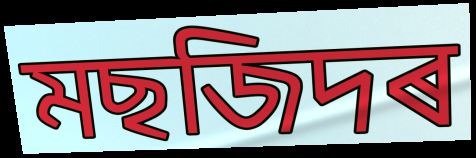
মছজিদৰ